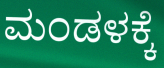
ಮಂಡಳಕ್ಕೆ